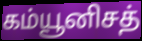
கம்யூனிசத்